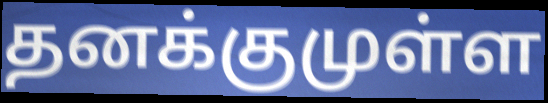
தனக்குமுள்ள